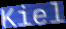
Kiel